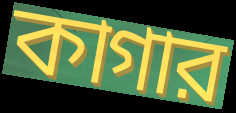
কাগার